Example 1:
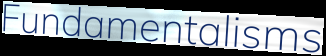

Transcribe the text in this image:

Fundamentalisms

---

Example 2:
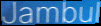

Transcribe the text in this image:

Jambul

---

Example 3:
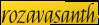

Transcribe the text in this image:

rozavasanth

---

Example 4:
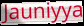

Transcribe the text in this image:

Jauniyya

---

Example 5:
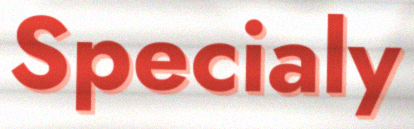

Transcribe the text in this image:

Specialy